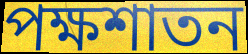
পক্ষশাতন